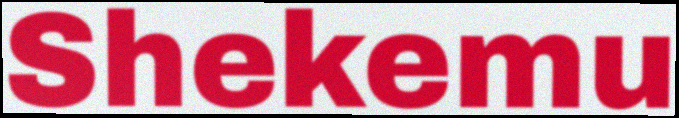
Shekemu